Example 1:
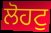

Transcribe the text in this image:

ਲੋਹਟੁ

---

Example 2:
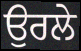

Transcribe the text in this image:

ਉਰਲੇ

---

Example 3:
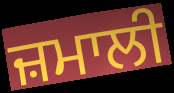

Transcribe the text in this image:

ਜ਼ਮਾਲੀ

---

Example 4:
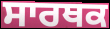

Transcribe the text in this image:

ਸਾਰਥਕ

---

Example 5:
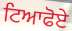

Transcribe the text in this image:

ਟਿਆਫੋਏ